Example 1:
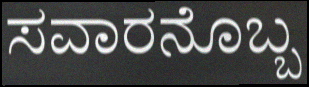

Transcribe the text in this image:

ಸವಾರನೊಬ್ಬ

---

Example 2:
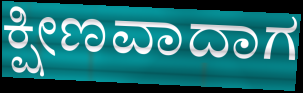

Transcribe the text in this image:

ಕ್ಷೀಣವಾದಾಗ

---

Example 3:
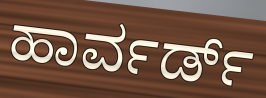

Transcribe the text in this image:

ಹಾರ್ವರ್ಡ್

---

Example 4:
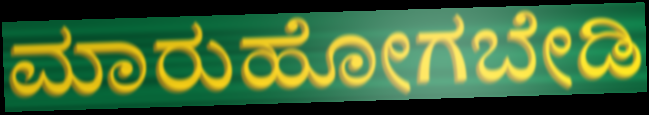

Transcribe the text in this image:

ಮಾರುಹೋಗಬೇಡಿ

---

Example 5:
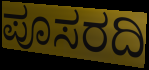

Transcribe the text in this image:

ಪೂಸರದಿ